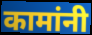
कामांनी